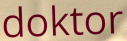
doktor